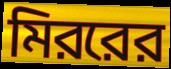
মিররের